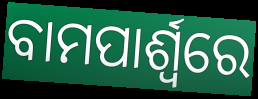
ବାମପାର୍ଶ୍ଵରେ